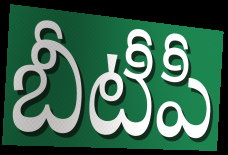
బీటీపీ